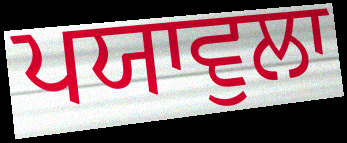
ਪਯਾਵੁਲਾ